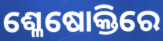
ଶ୍ଳେଷୋକ୍ତିରେ